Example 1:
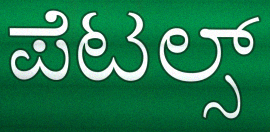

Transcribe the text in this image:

ಪೆಟಲ್ಸ್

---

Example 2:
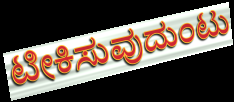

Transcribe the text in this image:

ಟೀಕಿಸುವುದುಂಟು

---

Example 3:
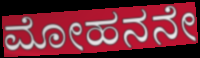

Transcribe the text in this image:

ಮೋಹನನೇ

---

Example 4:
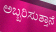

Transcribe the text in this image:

ಅಬ್ಬರಿಸುತ್ತಾನೆ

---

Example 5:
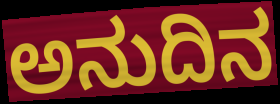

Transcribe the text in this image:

ಅನುದಿನ